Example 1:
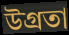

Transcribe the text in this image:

উগ্রতা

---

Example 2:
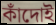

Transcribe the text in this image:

কাঁদোই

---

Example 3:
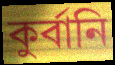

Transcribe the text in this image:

কুর্বানি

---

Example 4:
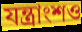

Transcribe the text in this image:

যন্ত্রাংশও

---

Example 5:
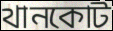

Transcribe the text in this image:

থানকোট